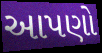
આપણો